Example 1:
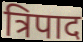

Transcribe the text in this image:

त्रिपाद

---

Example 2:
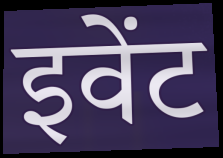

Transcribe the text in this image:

इवेंट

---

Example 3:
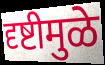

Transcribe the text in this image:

दृष्टीमुळे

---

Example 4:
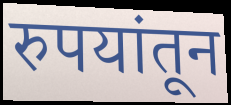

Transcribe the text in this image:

रुपयांतून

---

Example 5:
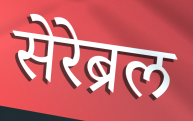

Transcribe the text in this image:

सेरेब्रल